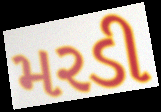
મરડી